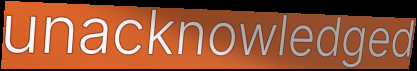
unacknowledged